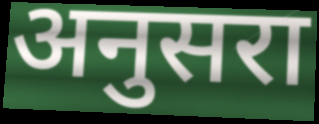
अनुसरा